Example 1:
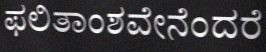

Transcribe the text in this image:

ಫಲಿತಾಂಶವೇನೆಂದರೆ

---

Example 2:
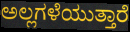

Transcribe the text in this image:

ಅಲ್ಲಗಳೆಯುತ್ತಾರೆ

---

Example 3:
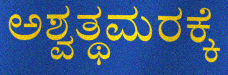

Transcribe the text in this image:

ಅಶ್ವತ್ಥಮರಕ್ಕೆ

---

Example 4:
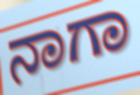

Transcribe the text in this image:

ನಾಗಾ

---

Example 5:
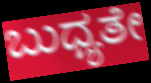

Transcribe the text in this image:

ಬುಧ್ಯತೇ